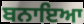
ਬਨਾਇਆ